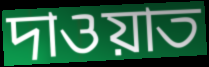
দাওয়াত